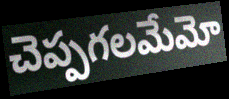
చెప్పగలమేమో